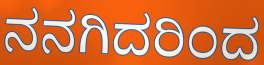
ನನಗಿದರಿಂದ